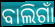
ବାଲିଗାଁ